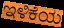
ಇಳಿಕೆಯ